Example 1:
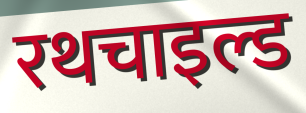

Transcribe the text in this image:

रथचाइल्ड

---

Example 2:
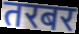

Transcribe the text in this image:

तरबर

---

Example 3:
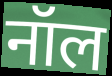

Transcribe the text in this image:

नॉल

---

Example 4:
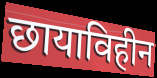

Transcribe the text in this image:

छायाविहीन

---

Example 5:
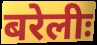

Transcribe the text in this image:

बरेलीः